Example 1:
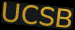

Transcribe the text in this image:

UCSB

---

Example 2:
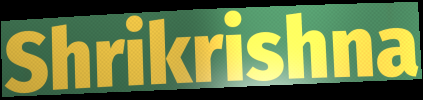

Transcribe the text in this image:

Shrikrishna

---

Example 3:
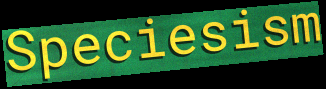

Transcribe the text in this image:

Speciesism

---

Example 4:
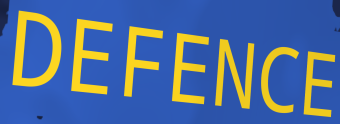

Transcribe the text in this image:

DEFENCE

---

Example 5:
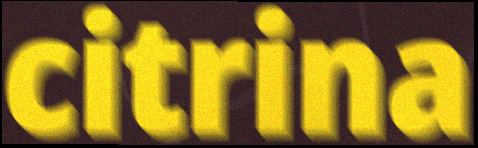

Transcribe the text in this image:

citrina